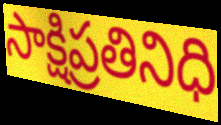
సాక్షిప్రతినిధి